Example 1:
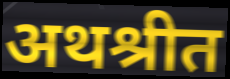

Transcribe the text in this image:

अथश्रीत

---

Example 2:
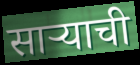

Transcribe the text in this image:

साऱ्याची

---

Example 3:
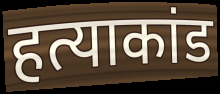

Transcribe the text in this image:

हत्याकांड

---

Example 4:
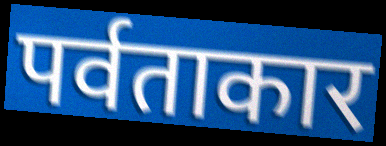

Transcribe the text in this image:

पर्वताकार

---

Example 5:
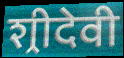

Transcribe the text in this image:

श्रीदेवी